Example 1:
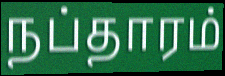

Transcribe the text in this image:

நப்தாரம்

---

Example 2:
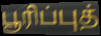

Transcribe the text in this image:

பூரிப்புத்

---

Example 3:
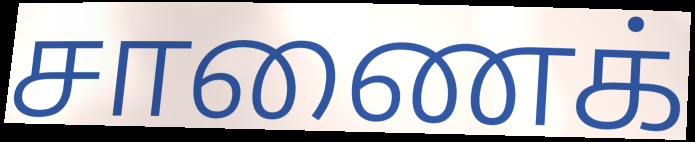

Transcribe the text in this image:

சாணைக்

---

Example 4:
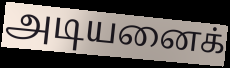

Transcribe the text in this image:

அடியனைக்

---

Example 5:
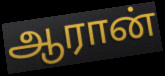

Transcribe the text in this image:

ஆரான்